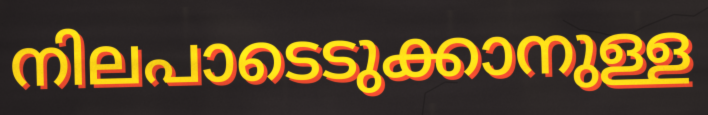
നിലപാടെടുക്കാനുള്ള